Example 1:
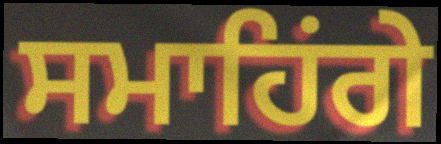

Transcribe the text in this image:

ਸਮਾਹਿਂਗੇ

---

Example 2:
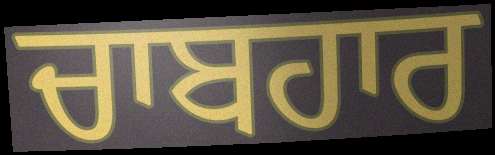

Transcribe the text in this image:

ਚਾਬਹਾਰ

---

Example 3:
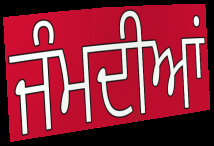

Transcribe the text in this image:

ਜੰਮਦੀਆਂ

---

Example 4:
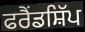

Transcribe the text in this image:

ਫਰੈਂਡਸ਼ਿੱਪ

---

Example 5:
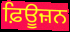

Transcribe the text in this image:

ਫ਼ਿਊਜ਼ਨ